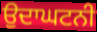
ਉਦਾਘਟਨੀ